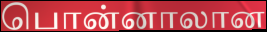
பொன்னாலான